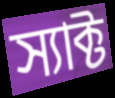
স্যাক্ট